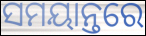
ସମୟାନ୍ତରେ